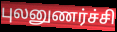
புலனுணர்ச்சி